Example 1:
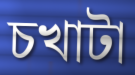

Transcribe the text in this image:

চখাটা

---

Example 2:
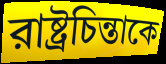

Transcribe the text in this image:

রাষ্ট্রচিন্তাকে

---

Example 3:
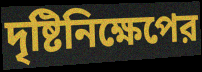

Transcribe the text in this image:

দৃষ্টিনিক্ষেপের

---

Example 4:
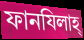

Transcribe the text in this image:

ফানযিলাহ্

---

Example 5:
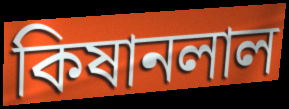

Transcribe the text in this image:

কিষানলাল